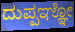
ದುಪ್ಪಞ್ಞೋ